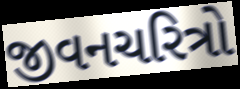
જીવનચરિત્રો